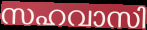
സഹവാസി